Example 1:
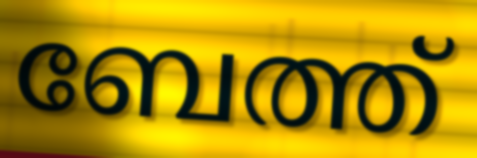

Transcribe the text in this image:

ബേത്ത്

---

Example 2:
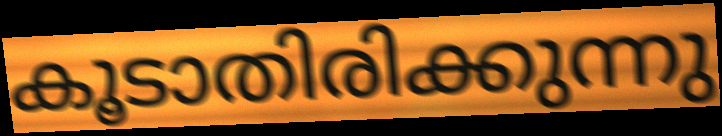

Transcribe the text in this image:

കൂടാതിരിക്കുന്നു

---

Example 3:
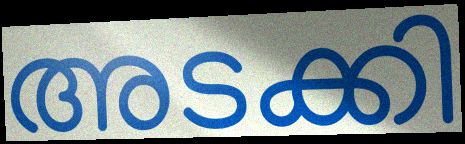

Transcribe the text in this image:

അടക്കി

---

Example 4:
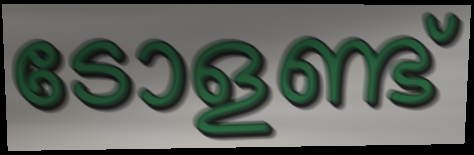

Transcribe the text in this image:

ടോളണ്ട്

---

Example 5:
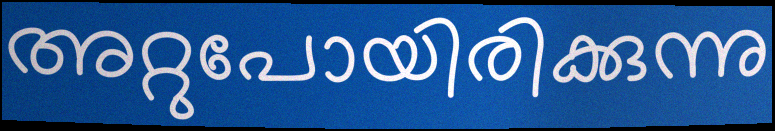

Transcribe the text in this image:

അറ്റുപോയിരിക്കുന്നു